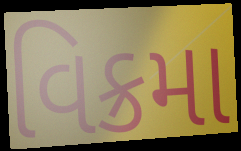
વિક્રમા